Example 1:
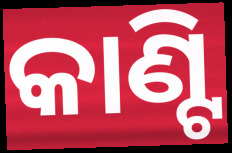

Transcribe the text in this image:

କାଣ୍ଟି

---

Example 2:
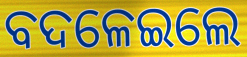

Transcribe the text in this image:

ବଦଳେଇଲେ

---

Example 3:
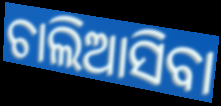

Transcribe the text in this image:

ଚାଲିଆସିବା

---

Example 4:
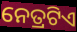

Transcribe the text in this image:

ନେତ୍ରଟିଏ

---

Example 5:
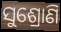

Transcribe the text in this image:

ସୁଶ୍ରୋଣି